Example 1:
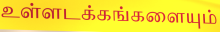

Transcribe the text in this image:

உள்ளடக்கங்களையும்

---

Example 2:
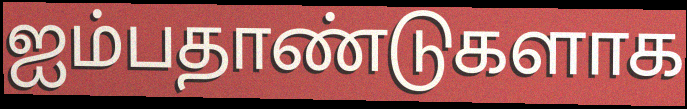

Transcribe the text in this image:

ஐம்பதாண்டுகளாக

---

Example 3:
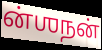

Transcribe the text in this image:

ன்ஶநன்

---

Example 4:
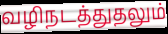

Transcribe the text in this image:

வழிநடத்துதலும்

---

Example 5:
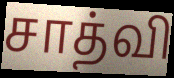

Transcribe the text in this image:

சாத்வி